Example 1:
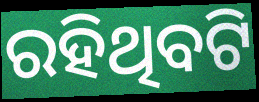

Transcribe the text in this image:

ରହିଥିବଟି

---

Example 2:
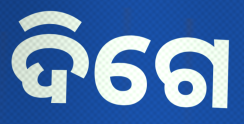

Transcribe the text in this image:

ଦିଗେ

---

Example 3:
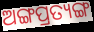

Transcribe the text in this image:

ଅଙ୍ଗପ୍ରତ୍ୟଙ୍ଗ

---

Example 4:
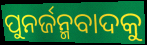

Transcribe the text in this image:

ପୁନର୍ଜନ୍ମବାଦକୁ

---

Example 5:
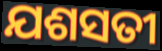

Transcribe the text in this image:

ଯଶସତୀ